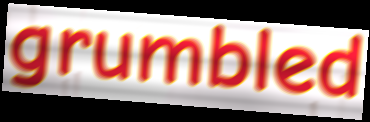
grumbled